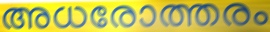
അധരോത്തരം